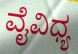
ವೈವಿಧ್ಯ